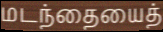
மடந்தையைத்